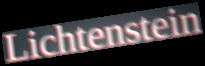
Lichtenstein